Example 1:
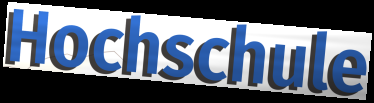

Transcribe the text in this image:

Hochschule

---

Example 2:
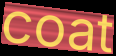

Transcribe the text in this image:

coat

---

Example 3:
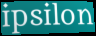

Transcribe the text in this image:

ipsilon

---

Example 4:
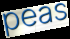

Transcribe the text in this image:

peas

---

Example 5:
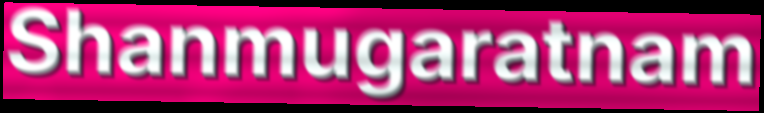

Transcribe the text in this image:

Shanmugaratnam